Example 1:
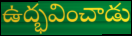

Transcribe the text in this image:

ఉద్భవించాడు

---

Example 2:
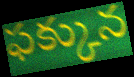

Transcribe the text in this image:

ఫక్కున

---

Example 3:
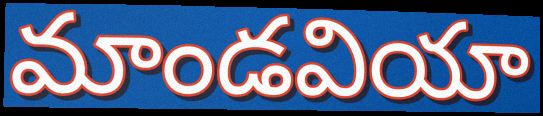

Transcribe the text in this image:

మాండవియా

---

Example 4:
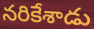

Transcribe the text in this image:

నరికేశాడు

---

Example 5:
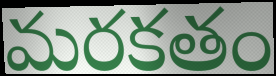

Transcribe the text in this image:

మరకతం